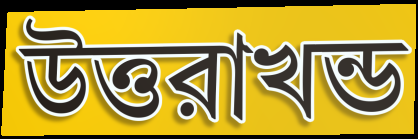
উত্তরাখন্ড